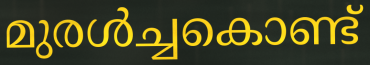
മുരൾച്ചകൊണ്ട്